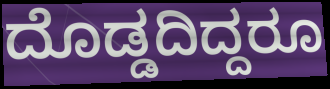
ದೊಡ್ಡದಿದ್ದರೂ